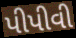
પીપીવી